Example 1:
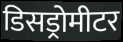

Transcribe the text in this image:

डिसड्रोमीटर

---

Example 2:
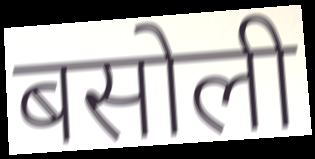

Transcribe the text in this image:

बसोली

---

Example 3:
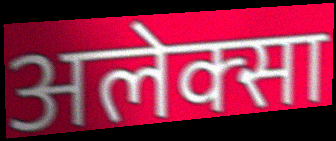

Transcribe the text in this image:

अलेक्‍सा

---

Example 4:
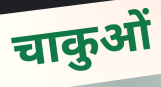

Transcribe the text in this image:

चाकुओं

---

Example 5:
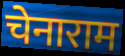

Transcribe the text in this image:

चेनाराम